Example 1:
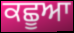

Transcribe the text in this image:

ਕਛੂਆ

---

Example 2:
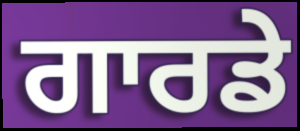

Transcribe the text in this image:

ਗਾਰਡੇ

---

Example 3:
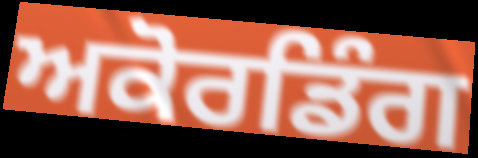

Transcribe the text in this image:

ਅਕੋਰਡਿੰਗ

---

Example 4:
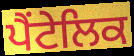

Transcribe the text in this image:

ਪੈਂਟੇਲਿਕ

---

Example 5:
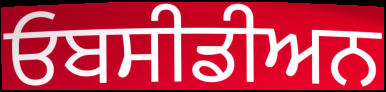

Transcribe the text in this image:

ਓਬਸੀਡੀਅਨ